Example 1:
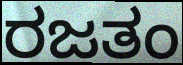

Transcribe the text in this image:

ರಜತಂ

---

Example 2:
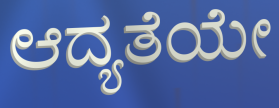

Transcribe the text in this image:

ಆದ್ಯತೆಯೇ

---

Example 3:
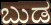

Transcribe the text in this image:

ಬುಡ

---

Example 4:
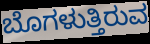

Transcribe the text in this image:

ಬೊಗಳುತ್ತಿರುವ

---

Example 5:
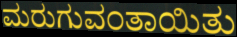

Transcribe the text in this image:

ಮರುಗುವಂತಾಯಿತು